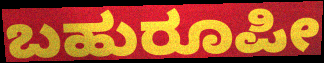
ಬಹುರೂಪೀ